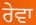
ਰੇਵਾ